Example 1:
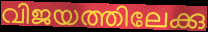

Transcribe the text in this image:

വിജയത്തിലേക്കു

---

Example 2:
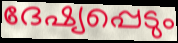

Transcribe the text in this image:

ദേഷ്യപ്പെടും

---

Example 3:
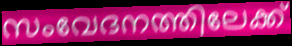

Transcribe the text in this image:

സംവേദനത്തിലേക്ക്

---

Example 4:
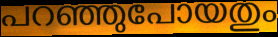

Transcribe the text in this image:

പറഞ്ഞുപോയതും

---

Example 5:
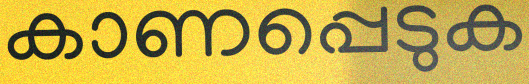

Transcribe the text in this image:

കാണപ്പെടുക